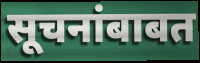
सूचनांबाबत